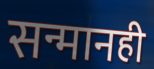
सन्मानही